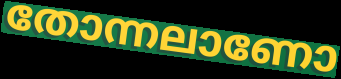
തോന്നലാണോ